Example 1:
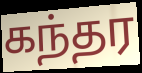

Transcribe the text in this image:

கந்தர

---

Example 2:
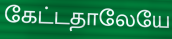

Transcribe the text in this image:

கேட்டதாலேயே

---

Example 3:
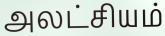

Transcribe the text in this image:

அலட்சியம்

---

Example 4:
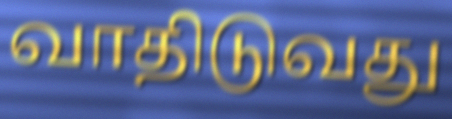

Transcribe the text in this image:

வாதிடுவது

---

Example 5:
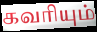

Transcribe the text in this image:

கவரியும்